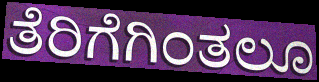
ತೆರಿಗೆಗಿಂತಲೂ